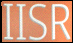
IISR